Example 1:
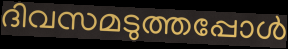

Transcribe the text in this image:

ദിവസമടുത്തപ്പോൾ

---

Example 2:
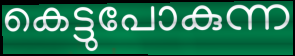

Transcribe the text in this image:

കെട്ടുപോകുന്ന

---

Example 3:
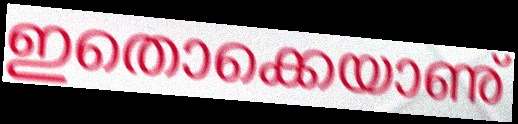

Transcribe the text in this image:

ഇതൊക്കെയാണു്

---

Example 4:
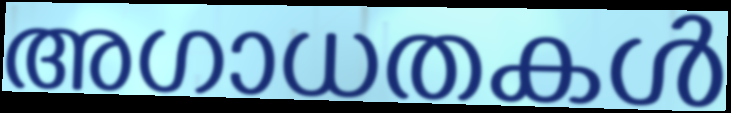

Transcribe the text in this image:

അഗാധതകൾ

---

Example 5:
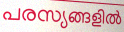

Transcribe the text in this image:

പരസ്യങ്ങളിൽ